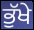
ਭੁੱਖੇ